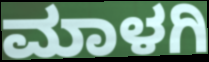
ಮಾಳಗಿ